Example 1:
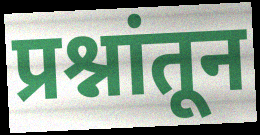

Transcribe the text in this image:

प्रश्नांतून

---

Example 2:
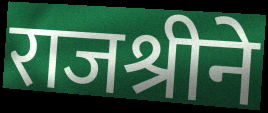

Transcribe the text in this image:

राजश्रीने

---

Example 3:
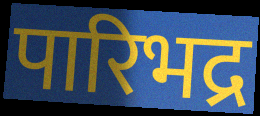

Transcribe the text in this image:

पारिभद्र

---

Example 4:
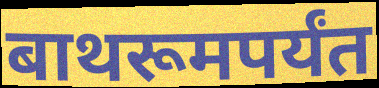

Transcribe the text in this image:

बाथरूमपर्यंत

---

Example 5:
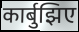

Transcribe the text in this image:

कार्बुझिए